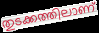
തുടക്കത്തിലാണ്